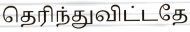
தெரிந்துவிட்டதே